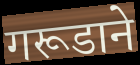
गरूडाने